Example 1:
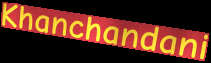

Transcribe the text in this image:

Khanchandani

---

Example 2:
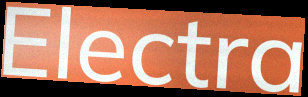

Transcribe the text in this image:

Electra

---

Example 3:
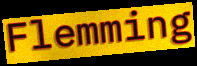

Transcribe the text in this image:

Flemming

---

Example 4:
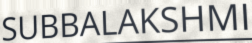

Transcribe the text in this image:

SUBBALAKSHMI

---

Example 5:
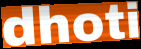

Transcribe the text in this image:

dhoti